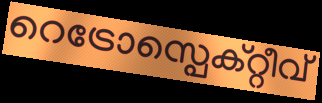
റെട്രോസ്പെക്റ്റീവ്